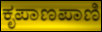
ಕೃಪಾಣಪಾಣಿ